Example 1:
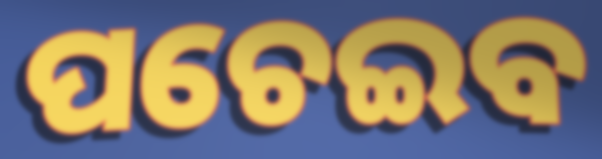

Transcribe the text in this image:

ପଚେଇବ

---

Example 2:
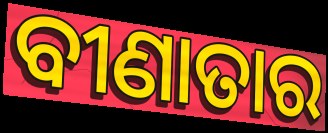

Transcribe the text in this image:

ବୀଣାତାର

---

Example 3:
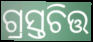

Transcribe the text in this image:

ଗ୍ରସ୍ତଚିତ୍ତ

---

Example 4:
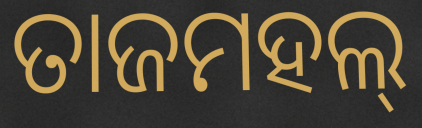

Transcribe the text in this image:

ତାଜମହଲ୍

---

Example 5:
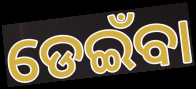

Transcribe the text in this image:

ଡେଇଁବା